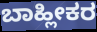
ಬಾಹ್ಲೀಕರ